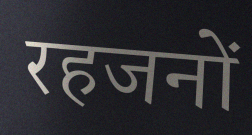
रहजनों